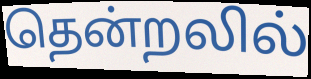
தென்றலில்